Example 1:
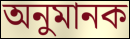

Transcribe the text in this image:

অনুমানক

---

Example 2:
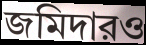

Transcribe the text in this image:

জমিদারও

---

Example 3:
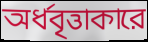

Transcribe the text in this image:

অর্ধবৃত্তাকারে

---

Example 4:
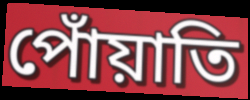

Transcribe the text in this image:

পোঁয়াতি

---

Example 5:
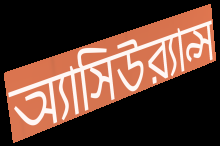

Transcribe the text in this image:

অ্যাসিউর‍্যান্স